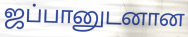
ஜப்பானுடனான